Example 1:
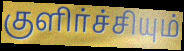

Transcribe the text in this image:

குளிர்ச்சியும்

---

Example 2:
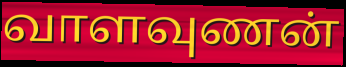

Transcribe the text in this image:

வாளவுணன்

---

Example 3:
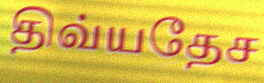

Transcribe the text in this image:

திவ்யதேச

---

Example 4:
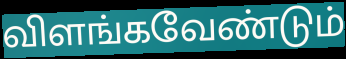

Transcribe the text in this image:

விளங்கவேண்டும்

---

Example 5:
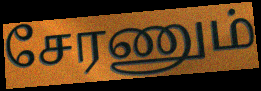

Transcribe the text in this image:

சேரணும்